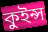
কুইন্স